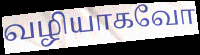
வழியாகவோ